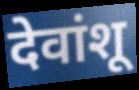
देवांशू